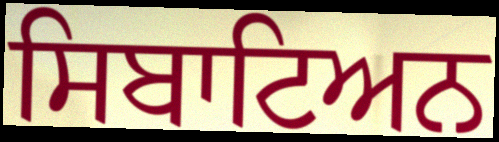
ਸਿਬਾਟਿਅਨ